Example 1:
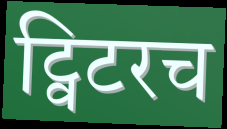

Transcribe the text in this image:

ट्विटरच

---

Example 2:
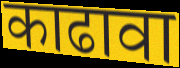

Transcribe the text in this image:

काढावा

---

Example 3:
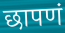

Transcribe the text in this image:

छापणं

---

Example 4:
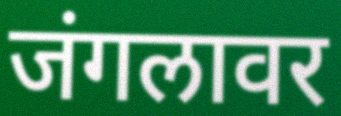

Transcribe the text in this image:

जंगलावर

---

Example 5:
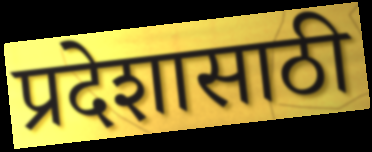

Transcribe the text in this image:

प्रदेशासाठी